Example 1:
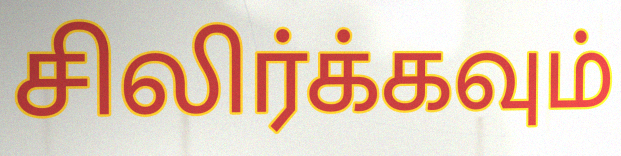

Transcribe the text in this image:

சிலிர்க்கவும்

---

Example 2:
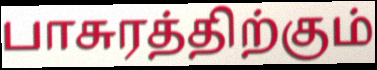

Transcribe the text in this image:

பாசுரத்திற்கும்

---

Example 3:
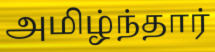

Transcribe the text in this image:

அமிழ்ந்தார்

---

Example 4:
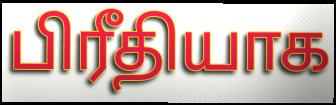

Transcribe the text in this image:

பிரீதியாக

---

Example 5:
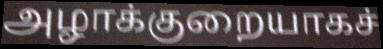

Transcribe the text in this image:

அழாக்குறையாகச்